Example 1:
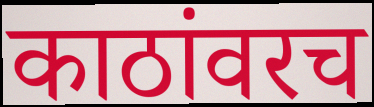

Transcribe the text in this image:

काठांवरच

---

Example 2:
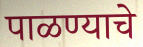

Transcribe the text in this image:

पाळण्याचे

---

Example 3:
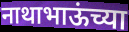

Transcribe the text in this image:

नाथाभाऊंच्या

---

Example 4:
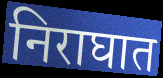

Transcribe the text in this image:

निराघात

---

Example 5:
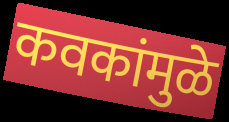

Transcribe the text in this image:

कवकांमुळे